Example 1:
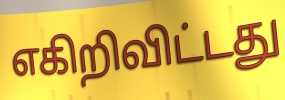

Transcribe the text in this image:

எகிறிவிட்டது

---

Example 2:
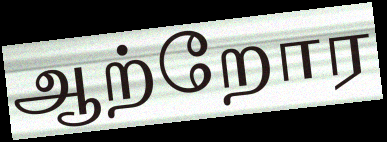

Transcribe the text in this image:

ஆற்றோர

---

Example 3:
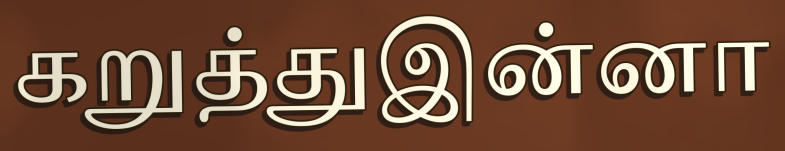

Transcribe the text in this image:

கறுத்துஇன்னா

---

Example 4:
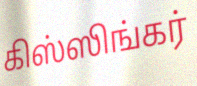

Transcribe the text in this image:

கிஸ்ஸிங்கர்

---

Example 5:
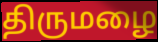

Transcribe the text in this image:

திருமழை